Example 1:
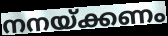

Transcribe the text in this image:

നനയ്ക്കണം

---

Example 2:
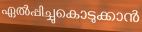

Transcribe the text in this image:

ഏൽപ്പിച്ചുകൊടുക്കാൻ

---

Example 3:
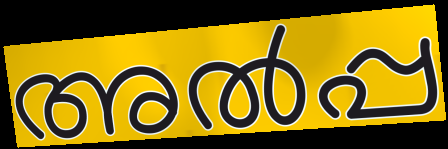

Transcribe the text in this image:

അൽപ്പ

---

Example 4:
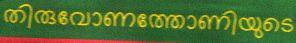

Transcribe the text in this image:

തിരുവോണത്തോണിയുടെ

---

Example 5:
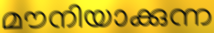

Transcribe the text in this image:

മൗനിയാക്കുന്ന